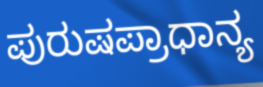
ಪುರುಷಪ್ರಾಧಾನ್ಯ